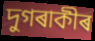
দুগৰাকীৰ